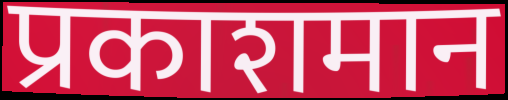
प्रकाशमान